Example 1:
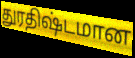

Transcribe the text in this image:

துரதிஷ்டமான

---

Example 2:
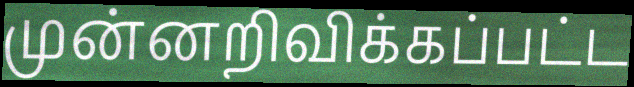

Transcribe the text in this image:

முன்னறிவிக்கப்பட்ட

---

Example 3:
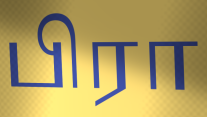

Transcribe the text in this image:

பிரா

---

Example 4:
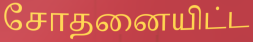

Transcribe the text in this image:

சோதனையிட்ட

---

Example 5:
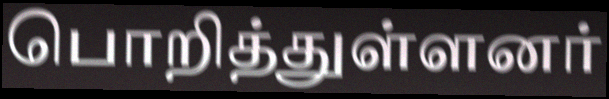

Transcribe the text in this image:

பொறித்துள்ளனர்